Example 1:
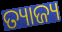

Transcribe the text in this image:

ତ୍ୟାଜ୍ୟ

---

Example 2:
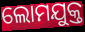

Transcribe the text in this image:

ଲୋମଯୁକ୍ତ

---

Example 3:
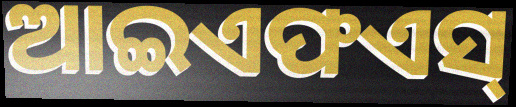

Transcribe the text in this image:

ଆଇଏଫଏସ୍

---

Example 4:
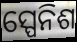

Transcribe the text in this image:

ସ୍ପେନିଶ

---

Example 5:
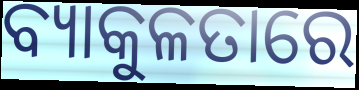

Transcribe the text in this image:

ବ୍ୟାକୁଳତାରେ